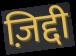
ज़िद्दी